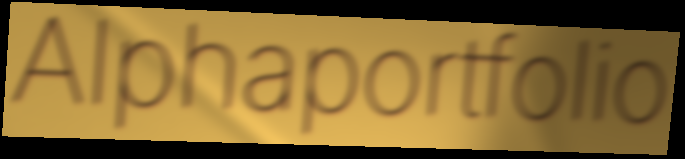
Alphaportfolio